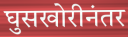
घुसखोरीनंतर